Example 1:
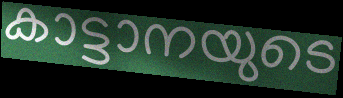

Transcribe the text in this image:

കാട്ടാനയുടെ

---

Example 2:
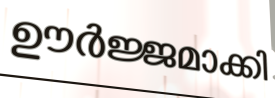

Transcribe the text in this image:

ഊർജ്ജമാക്കി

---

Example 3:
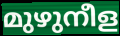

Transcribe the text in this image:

മുഴുനീള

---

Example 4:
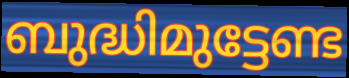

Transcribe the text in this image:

ബുദ്ധിമുട്ടേണ്ട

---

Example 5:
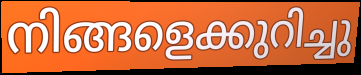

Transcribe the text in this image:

നിങ്ങളെക്കുറിച്ചു